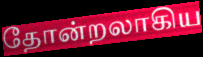
தோன்றலாகிய